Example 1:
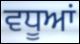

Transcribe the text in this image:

ਵਧੂਆਂ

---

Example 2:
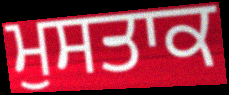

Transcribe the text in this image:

ਮੁਸਤਾਕ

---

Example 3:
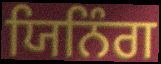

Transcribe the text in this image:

ਯਿਨਿੰਗ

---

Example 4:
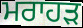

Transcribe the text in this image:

ਮਰਾਹੜ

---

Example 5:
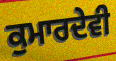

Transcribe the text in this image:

ਕੁਮਾਰਦੇਵੀ